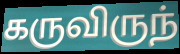
கருவிருந்